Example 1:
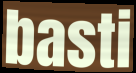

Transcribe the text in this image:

basti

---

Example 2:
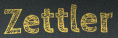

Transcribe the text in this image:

Zettler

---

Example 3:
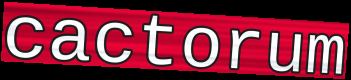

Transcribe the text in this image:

cactorum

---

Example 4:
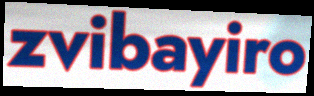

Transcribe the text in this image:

zvibayiro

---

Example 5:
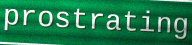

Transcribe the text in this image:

prostrating